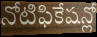
నోటిఫికేషన్లో